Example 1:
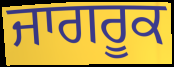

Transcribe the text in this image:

ਜਾਗਰੂਕ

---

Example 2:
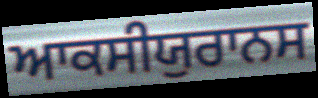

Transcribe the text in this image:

ਆਕਸੀਯੁਰਾਨਸ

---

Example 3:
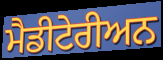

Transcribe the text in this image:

ਮੈਡੀਟੇਰੀਅਨ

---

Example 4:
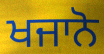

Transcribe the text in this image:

ਖਜਾਨੋ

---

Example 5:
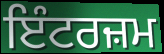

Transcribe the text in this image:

ਇੰਟਰਜ਼ਮ